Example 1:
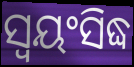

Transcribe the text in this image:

ସ୍ୱୟଂସିଦ୍ଧ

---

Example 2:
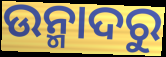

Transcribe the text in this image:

ଉନ୍ମାଦରୁ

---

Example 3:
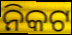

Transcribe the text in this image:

ନିକଟ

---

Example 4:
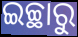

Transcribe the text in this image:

ଇଚ୍ଛାରୁ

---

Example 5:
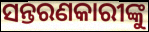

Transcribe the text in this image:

ସନ୍ତରଣକାରୀଙ୍କୁ